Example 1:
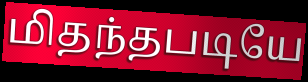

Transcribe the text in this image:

மிதந்தபடியே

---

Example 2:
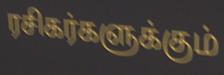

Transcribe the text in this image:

ரசிகர்களுக்கும்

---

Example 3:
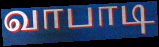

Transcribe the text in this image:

வாபாடி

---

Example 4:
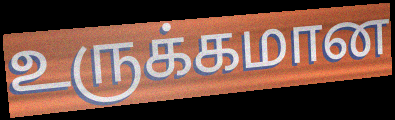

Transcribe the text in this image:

உருக்கமான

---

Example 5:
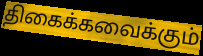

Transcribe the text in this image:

திகைக்கவைக்கும்